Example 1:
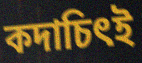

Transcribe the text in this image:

কদাচিৎই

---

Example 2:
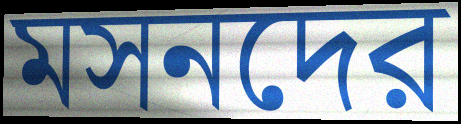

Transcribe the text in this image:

মসনদের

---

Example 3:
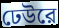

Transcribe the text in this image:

ঢেউরে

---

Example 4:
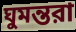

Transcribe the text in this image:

ঘুমন্তরা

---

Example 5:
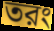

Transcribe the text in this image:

তরং